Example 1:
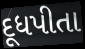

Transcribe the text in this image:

દૂધપીતા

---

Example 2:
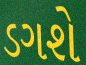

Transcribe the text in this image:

ડગશે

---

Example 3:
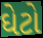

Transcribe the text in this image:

ઘેટો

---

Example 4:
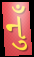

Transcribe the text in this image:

નુઁ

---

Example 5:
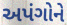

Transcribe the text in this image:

અપંગોને